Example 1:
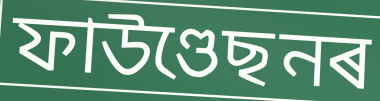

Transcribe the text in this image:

ফাউণ্ডেছনৰ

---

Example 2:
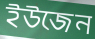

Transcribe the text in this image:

ইউজেন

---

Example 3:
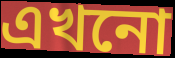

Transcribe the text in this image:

এখনো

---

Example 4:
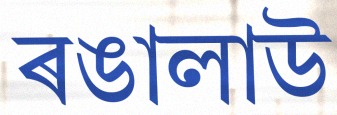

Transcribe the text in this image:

ৰঙালাউ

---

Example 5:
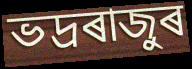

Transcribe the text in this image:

ভদ্ৰৰাজুৰ